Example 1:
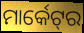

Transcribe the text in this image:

ମାର୍କେଟ୍‌ର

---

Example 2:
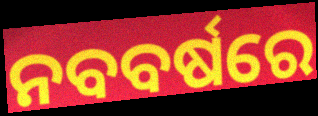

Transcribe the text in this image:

ନବବର୍ଷରେ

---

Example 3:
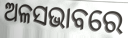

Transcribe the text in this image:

ଅଳସଭାବରେ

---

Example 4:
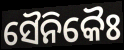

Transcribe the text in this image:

ସୈନିକୈଃ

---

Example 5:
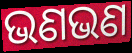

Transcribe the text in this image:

ଭଣଭଣ